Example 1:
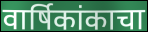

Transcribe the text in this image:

वार्षिकांकाचा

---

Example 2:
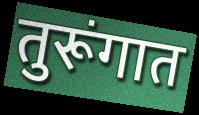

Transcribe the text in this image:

तुरूंगात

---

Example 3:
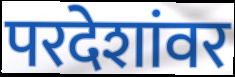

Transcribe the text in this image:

परदेशांवर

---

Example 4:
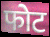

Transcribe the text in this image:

फोट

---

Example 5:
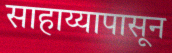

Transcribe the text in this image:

साहाय्यापासून